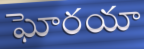
ఘోరయా